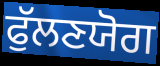
ਫੁੱਲਣਯੋਗ